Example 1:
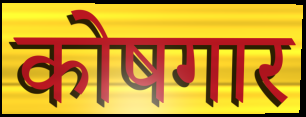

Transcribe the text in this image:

कोषगार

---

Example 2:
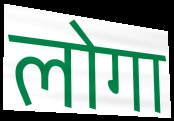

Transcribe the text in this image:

लोगा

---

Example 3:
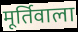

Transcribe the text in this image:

मूर्तिवाला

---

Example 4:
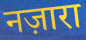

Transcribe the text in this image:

नज़ारा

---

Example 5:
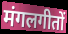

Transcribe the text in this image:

मंगलगीतों